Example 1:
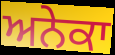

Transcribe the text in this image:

ਅਨੇਕਾ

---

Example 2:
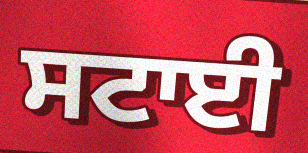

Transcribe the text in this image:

ਸਟਾਈ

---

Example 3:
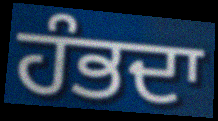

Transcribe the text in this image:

ਹੰਭਦਾ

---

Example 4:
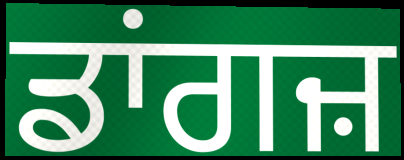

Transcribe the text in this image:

ਡਾਂਗਜ਼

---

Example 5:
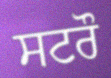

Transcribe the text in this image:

ਸਟਰੌ